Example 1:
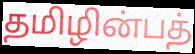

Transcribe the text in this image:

தமிழின்பத்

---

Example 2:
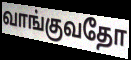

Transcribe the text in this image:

வாங்குவதோ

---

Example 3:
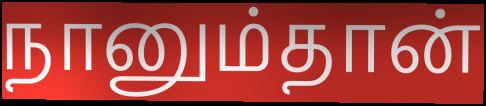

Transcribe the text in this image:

நானும்தான்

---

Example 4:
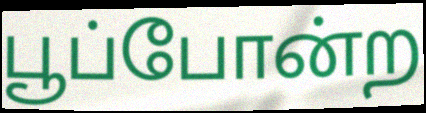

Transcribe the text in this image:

பூப்போன்ற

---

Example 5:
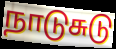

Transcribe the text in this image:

நாடுசுடு